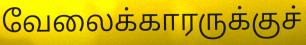
வேலைக்காரருக்குச்